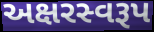
અક્ષરસ્વરૂપ